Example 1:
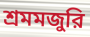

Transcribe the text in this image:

শ্রমমজুরি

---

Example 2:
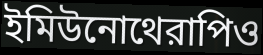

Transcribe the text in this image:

ইমিউনোথেরাপিও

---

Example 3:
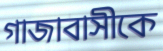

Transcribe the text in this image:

গাজাবাসীকে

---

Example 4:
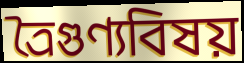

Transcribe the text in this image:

ত্রৈগুণ্যবিষয়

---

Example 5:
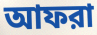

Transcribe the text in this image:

আফরা